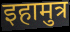
इहामुत्र